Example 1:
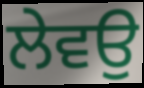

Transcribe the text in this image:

ਲੇਵਉ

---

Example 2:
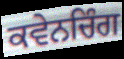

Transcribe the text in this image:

ਕਵੇਨਚਿੰਗ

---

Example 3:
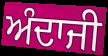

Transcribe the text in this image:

ਅੰਦਾਜੀ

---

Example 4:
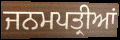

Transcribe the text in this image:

ਜਨਮਪਤ੍ਰੀਆਂ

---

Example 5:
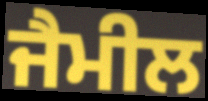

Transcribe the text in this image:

ਜੈਮੀਲ